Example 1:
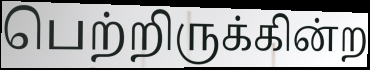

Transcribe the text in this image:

பெற்றிருக்கின்ற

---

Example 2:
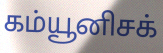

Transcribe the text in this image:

கம்யூனிசக்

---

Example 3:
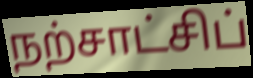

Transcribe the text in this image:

நற்சாட்சிப்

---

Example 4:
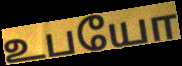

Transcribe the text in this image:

உபயோ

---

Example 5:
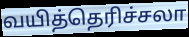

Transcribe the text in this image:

வயித்தெரிச்சலா